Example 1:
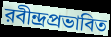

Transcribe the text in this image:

রবীন্দ্রপ্রভাবিত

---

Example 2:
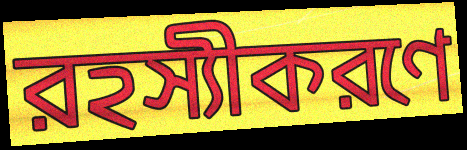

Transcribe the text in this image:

রহস্যীকরণে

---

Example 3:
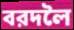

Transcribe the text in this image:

বরদলৈ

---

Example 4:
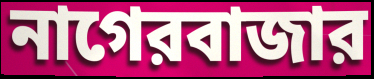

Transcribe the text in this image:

নাগেরবাজার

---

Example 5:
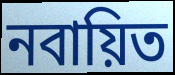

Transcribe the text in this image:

নবায়িত